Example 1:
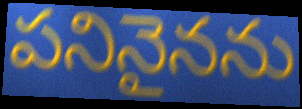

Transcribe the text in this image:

పనినైనను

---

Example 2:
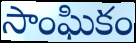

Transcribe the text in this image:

సాంఘికం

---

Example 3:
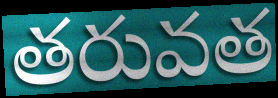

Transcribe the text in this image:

తరువత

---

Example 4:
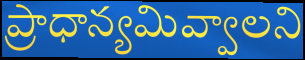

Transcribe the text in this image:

ప్రాధాన్యమివ్వాలని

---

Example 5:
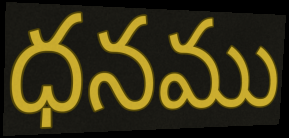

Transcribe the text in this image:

ధనము